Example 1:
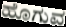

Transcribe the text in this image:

ಹೊಗುವ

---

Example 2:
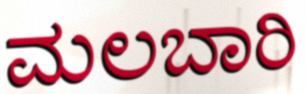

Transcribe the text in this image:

ಮಲಬಾರಿ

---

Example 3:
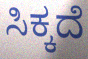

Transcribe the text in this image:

ಸಿಕ್ಕದೆ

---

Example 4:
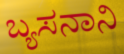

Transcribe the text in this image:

ಬ್ಯಸನಾನಿ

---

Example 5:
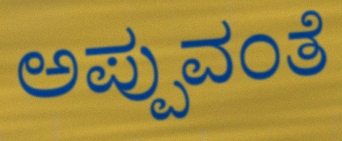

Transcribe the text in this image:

ಅಪ್ಪುವಂತೆ